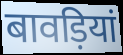
बावड़ियां